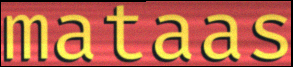
mataas